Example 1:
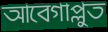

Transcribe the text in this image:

আবেগাপ্লুত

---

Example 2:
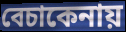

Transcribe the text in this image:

বেচাকেনায়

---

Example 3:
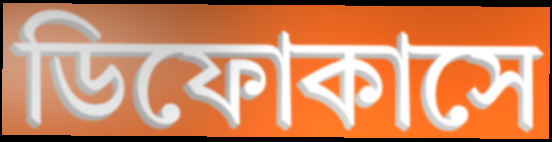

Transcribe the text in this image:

ডিফোকাসে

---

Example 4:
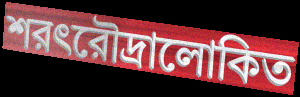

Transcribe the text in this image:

শরৎরৌদ্রালোকিত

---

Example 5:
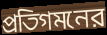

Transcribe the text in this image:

প্রতিগমনের